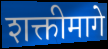
शक्तीमागे